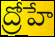
ద్రోహే